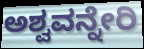
ಅಶ್ವವನ್ನೇರಿ